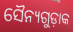
ସୈନ୍ୟଗୁଡ଼ାକ